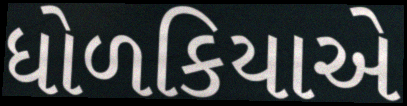
ધોળકિયાએ